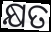
କ୍ଷତ